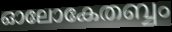
ഓലോകേതബ്ബം